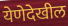
येणेदेखील